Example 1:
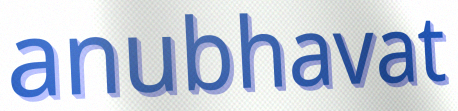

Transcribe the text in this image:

anubhavat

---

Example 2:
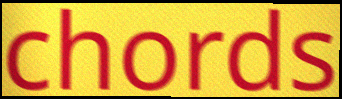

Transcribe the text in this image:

chords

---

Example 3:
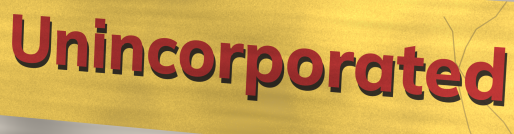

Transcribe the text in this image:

Unincorporated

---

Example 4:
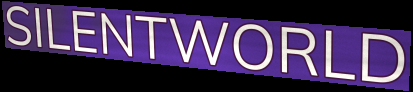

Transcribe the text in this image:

SILENTWORLD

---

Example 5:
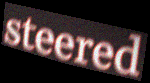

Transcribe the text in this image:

steered